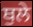
ਥੁਲੇ